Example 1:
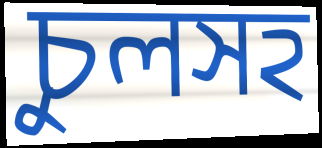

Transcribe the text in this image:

চুলসহ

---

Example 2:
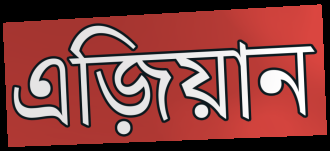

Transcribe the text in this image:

এজ়িয়ান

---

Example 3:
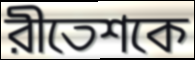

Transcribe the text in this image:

রীতেশকে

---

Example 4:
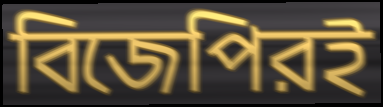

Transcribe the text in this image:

বিজেপিরই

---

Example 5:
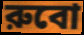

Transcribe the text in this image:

রুবো